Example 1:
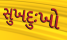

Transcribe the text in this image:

સુખદુઃખો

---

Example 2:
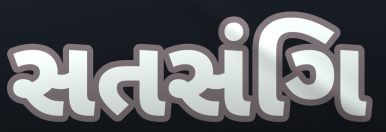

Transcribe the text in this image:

સતસંગિ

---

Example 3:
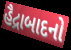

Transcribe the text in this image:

હૈદ્રાબાદનો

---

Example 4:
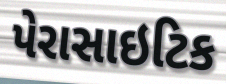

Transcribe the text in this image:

પેરાસાઇટિક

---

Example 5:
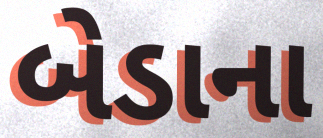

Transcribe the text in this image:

બેડાના